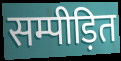
सम्पीड़ित